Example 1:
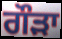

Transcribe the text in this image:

ਗੌੜਾ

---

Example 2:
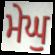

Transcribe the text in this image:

ਮੇਘੁ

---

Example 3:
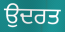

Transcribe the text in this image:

ਉਦਰਤ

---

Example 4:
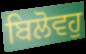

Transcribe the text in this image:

ਬਿਲੋਵਹੁ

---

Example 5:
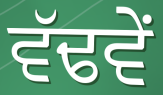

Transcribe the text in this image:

ਵੱਢਵੇਂ